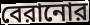
বেরানোর